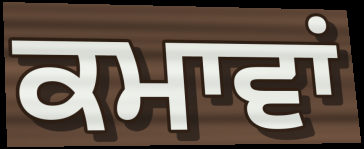
ਕਮਾਵਾਂ